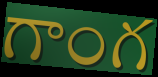
గాంగ